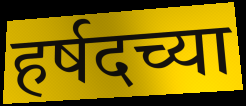
हर्षदच्या